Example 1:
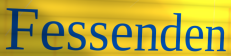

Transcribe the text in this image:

Fessenden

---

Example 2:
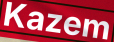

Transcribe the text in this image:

Kazem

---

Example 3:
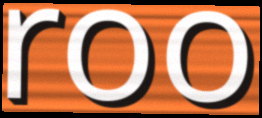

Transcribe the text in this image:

roo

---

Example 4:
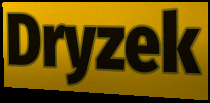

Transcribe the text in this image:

Dryzek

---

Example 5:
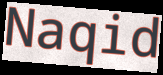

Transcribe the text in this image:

Naqid